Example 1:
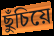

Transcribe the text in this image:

ছুঁচিয়ে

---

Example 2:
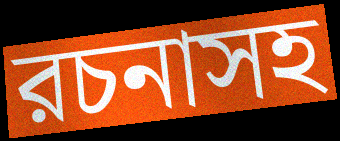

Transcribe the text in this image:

রচনাসহ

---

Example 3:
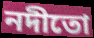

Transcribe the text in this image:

নদীতো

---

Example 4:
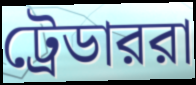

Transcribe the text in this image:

ট্রেডাররা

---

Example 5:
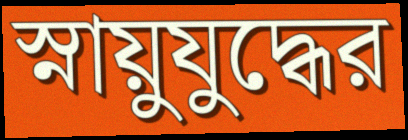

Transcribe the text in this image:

স্নায়ুযুদ্ধের